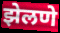
झेलणे